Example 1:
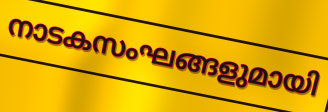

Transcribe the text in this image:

നാടകസംഘങ്ങളുമായി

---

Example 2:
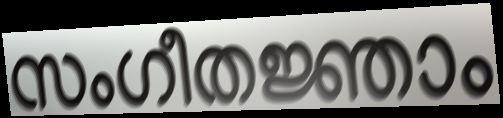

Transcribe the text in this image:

സംഗീതജ്ഞാം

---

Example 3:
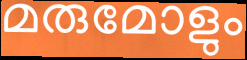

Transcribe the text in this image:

മരുമോളും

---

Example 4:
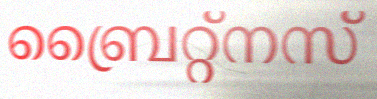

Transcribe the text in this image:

ബ്രൈറ്റ്നസ്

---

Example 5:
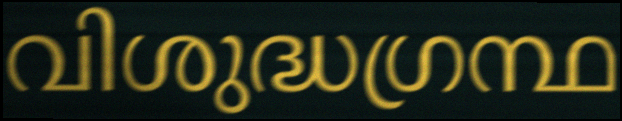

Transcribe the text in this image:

വിശുദ്ധഗ്രന്ഥ